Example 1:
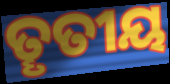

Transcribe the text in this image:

ତୄତୀୟ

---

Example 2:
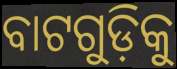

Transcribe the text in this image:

ବାଟଗୁଡ଼ିକୁ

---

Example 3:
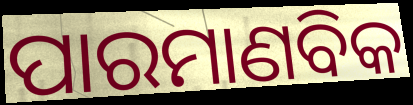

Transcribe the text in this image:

ପାରମାଣବିକ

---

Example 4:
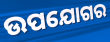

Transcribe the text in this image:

ଉପଯୋଗର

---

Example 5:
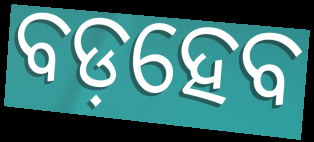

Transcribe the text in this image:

ବଡ଼ହେବ